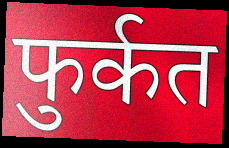
फुर्कत